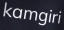
kamgiri